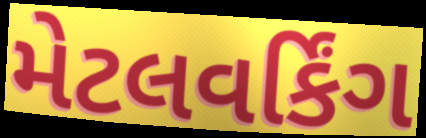
મેટલવર્કિંગ